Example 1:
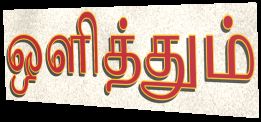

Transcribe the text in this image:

ஒளித்தும்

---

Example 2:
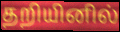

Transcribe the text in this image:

தறியினில்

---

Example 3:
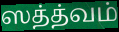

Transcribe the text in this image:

ஸத்த்வம்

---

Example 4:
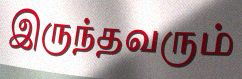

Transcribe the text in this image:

இருந்தவரும்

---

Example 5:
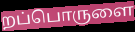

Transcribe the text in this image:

றப்பொருளை